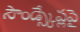
సౌండ్స్కేప్లపై